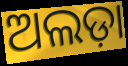
ଅଲଡ଼ା